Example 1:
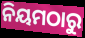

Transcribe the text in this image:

ନିୟମଠାରୁ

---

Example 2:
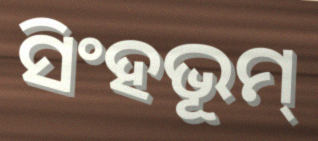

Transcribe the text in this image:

ସିଂହଭୂମ୍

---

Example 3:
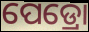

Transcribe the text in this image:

ପେଡ୍ରୋ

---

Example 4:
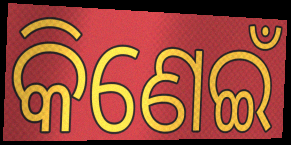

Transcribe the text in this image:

କିଣେଇଁ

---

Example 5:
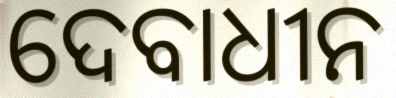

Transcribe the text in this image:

ଦେବାଧୀନ